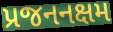
પ્રજનનક્ષમ